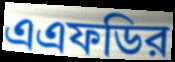
এএফডির